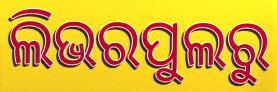
ଲିଭରପୁଲରୁ